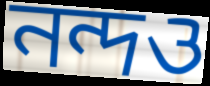
নন্দও